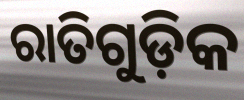
ରାତିଗୁଡ଼ିକ